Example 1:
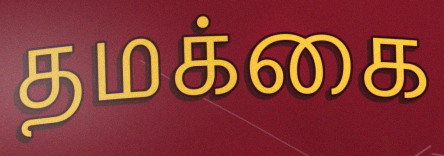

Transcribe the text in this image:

தமக்கை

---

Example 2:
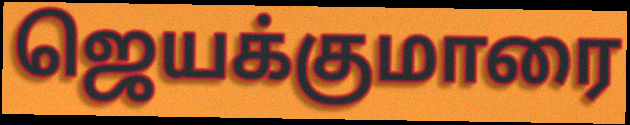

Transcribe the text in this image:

ஜெயக்குமாரை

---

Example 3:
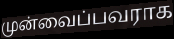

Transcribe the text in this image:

முன்வைப்பவராக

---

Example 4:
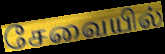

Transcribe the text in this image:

சேவையில்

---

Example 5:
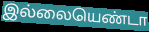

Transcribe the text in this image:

இல்லையெண்டா